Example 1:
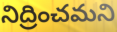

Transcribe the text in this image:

నిద్రించమని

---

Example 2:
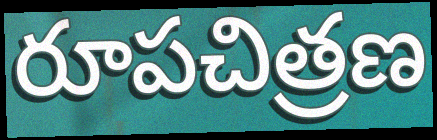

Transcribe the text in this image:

రూపచిత్రణ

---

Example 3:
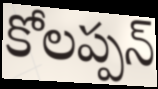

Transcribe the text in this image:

కోలప్పన్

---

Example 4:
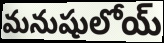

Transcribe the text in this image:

మనుషులోయ్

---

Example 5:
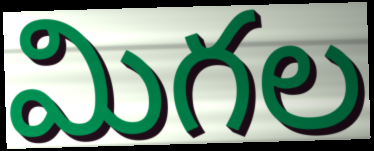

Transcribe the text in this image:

మిగల